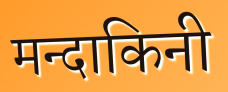
मन्दाकिनी